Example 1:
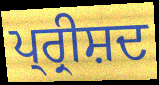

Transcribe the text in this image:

ਪ੍ਰ੍ਰੀਸ਼ਦ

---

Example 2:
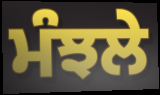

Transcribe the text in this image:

ਮੰਝਲੇ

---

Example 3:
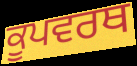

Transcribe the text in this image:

ਕੂਪਵਰਥ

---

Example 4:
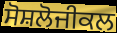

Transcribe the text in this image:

ਸੋਸ਼ਲੋਜੀਕਲ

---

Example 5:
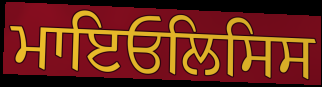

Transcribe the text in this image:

ਮਾਇਓਲਿਸਿਸ